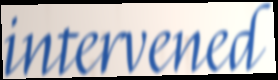
intervened